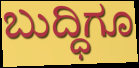
ಬುದ್ಧಿಗೂ